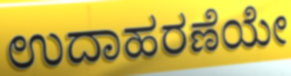
ಉದಾಹರಣೆಯೇ